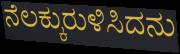
ನೆಲಕ್ಕುರುಳಿಸಿದನು